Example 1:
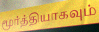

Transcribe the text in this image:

மூர்த்தியாகவும்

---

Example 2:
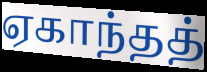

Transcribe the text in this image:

ஏகாந்தத்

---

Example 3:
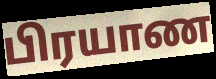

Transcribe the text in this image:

பிரயாண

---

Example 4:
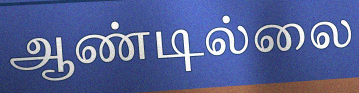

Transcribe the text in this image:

ஆண்டில்லை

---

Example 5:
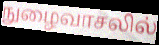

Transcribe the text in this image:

நுழைவாசலில்